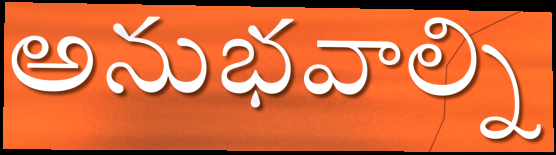
అనుభవాల్ని